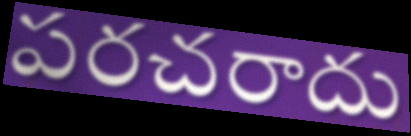
పరచరాదు